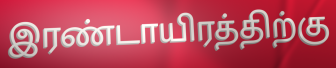
இரண்டாயிரத்திற்கு